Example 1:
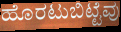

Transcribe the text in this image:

ಹೊರಟುಬಿಟ್ಟೆವು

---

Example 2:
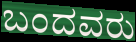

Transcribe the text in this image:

ಬಂದವರು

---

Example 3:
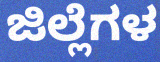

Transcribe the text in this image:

ಜಿಲ್ಲೆಗಳ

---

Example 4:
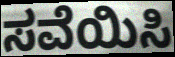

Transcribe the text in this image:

ಸವೆಯಿಸಿ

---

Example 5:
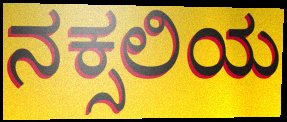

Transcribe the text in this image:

ನಕ್ಸಲಿಯ